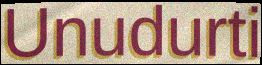
Unudurti